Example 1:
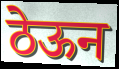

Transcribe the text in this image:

ठेऊन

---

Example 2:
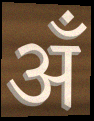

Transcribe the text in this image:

अँ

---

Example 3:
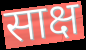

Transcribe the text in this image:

साक्ष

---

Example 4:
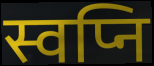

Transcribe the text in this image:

स्वप्नि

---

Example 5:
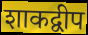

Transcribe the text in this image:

शाकद्वीप